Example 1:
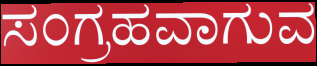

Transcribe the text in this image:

ಸಂಗ್ರಹವಾಗುವ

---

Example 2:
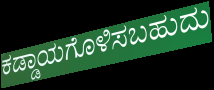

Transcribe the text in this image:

ಕಡ್ಡಾಯಗೊಳಿಸಬಹುದು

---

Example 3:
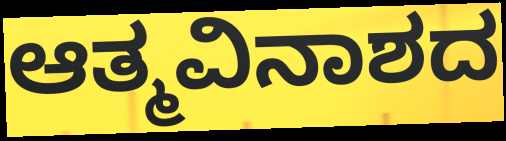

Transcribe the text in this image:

ಆತ್ಮವಿನಾಶದ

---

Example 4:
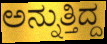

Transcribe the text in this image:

ಅನ್ನುತ್ತಿದ್ದ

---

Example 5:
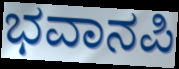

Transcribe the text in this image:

ಭವಾನಪಿ